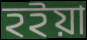
হইয়া